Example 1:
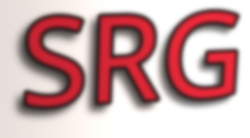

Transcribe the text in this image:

SRG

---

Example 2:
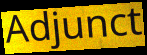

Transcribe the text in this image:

Adjunct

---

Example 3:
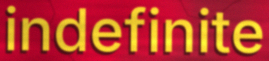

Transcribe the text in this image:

indefinite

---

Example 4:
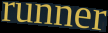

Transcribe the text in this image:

runner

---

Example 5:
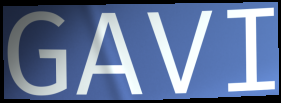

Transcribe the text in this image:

GAVI